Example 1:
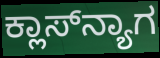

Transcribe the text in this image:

ಕ್ಲಾಸ್‌ನ್ಯಾಗ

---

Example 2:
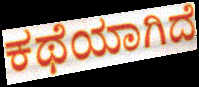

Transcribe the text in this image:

ಕಥೆಯಾಗಿದೆ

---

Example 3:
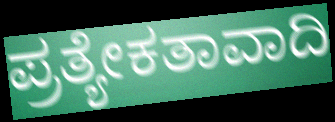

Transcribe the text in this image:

ಪ್ರತ್ಯೇಕತಾವಾದಿ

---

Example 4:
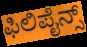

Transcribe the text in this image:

ಫಿಲಿಪೈನ್ಸ್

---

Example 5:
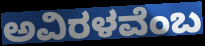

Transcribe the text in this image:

ಅವಿರಳವೆಂಬ